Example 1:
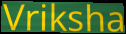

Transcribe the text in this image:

Vriksha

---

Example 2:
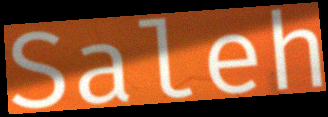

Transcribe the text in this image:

Saleh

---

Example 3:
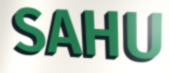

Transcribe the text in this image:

SAHU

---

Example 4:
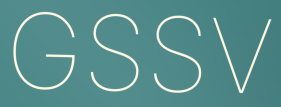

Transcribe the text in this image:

GSSV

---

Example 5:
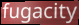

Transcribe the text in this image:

fugacity